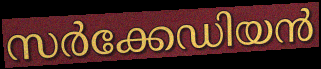
സർക്കേഡിയൻ